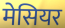
मेसियर